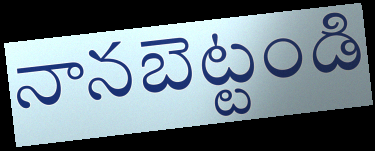
నానబెట్టండి